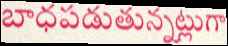
బాధపడుతున్నట్లుగా